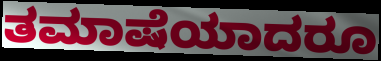
ತಮಾಷೆಯಾದರೂ